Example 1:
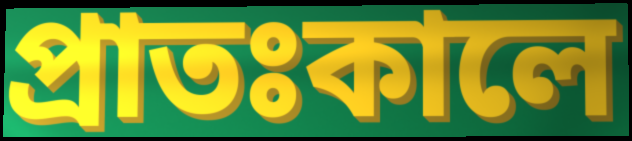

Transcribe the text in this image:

প্রাতঃকালে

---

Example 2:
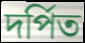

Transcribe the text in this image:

দর্পিত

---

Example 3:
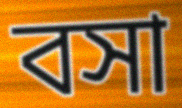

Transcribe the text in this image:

বসা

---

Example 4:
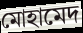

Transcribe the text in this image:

মোহামেদ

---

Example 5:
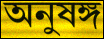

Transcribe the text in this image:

অনুষঙ্গ